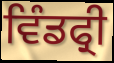
ਵਿੰਡਫ੍ਰੀ